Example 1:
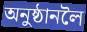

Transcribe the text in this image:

অনুষ্ঠানলৈ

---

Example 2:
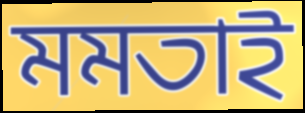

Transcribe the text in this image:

মমতাই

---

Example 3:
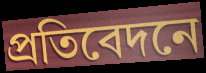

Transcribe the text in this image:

প্ৰতিবেদনে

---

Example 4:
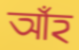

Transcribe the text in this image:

আঁহ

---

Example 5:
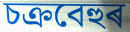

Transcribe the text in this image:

চক্ৰবেহুৰ